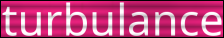
turbulance